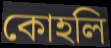
কোহলি